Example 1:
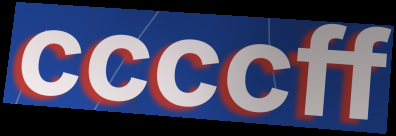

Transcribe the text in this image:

ccccff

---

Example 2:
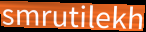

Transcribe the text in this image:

smrutilekh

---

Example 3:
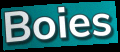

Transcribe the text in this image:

Boies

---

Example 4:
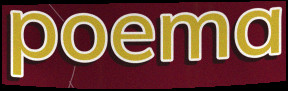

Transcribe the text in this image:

poema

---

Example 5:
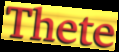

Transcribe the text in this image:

Thete